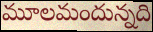
మూలమందున్నది